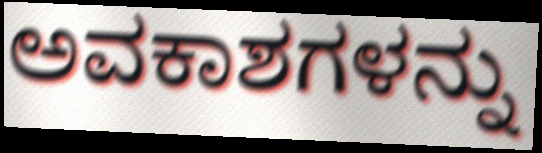
ಅವಕಾಶಗಳನ್ನು